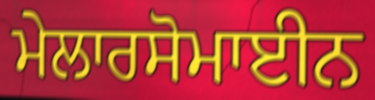
ਮੇਲਾਰਸੋਮਾਈਨ